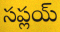
సప్లయ్